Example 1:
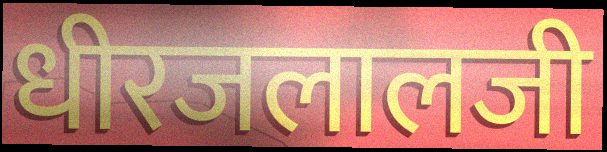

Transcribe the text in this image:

धीरजलालजी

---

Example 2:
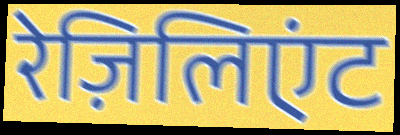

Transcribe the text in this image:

रेज़िलिएंट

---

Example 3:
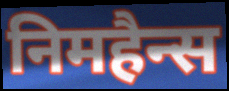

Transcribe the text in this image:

निमहैन्स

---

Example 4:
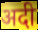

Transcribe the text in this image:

अदी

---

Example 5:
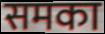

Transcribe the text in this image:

समका